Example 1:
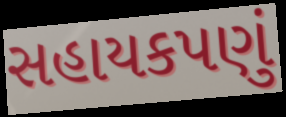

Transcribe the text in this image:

સહાયકપણું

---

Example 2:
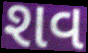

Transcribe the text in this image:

શવ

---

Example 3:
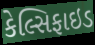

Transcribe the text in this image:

કેલ્સિફાઇડ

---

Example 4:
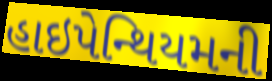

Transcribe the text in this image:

હાઇપેન્થિયમની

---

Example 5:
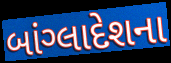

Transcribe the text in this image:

બાંગ્લાદેશના